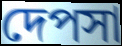
দেপসা